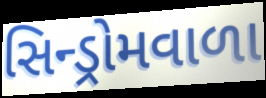
સિન્ડ્રોમવાળા